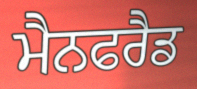
ਮੈਨਫਰੈਡ